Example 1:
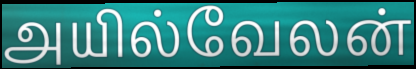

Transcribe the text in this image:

அயில்வேலன்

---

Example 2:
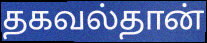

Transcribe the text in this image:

தகவல்தான்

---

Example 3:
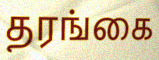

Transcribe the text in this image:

தரங்கை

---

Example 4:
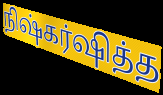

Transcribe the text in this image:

நிஷ்கர்ஷித்த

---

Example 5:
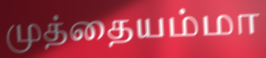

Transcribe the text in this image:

முத்தையம்மா